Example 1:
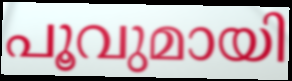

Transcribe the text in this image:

പൂവുമായി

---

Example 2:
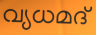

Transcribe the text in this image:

വ്യധമദ്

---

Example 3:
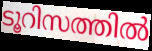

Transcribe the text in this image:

ടൂറിസത്തിൽ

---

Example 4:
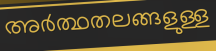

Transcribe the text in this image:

അർത്ഥതലങ്ങളുള്ള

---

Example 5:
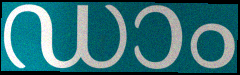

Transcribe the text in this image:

ഡാം